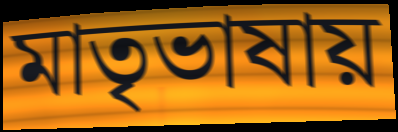
মাতৃভাষায়